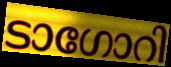
ടാഗോറി